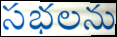
సభలను